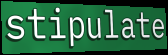
stipulate